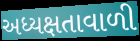
અધ્યક્ષતાવાળી